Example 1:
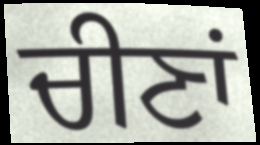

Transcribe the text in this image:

ਚੀਣਾਂ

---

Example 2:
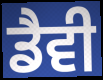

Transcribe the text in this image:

ਡੈਵੀ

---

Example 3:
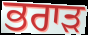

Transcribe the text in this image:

ਭਰਾੜ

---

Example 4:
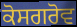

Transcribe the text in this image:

ਕੋਸਗਰੋਵ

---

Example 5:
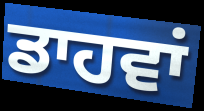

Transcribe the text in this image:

ਡਾਹਵਾਂ